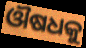
ଔଷଧକୁ